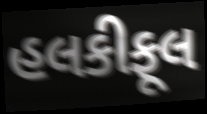
હલકીફૂલ